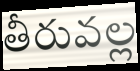
తీరువల్ల